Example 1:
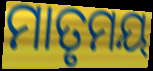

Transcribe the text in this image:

ମାତୃମୟ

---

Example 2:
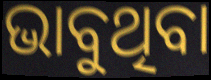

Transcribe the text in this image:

ଭାବୁଥିବା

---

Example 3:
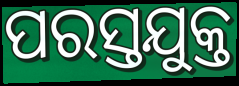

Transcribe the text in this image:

ପରସ୍ତଯୁକ୍ତ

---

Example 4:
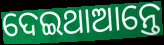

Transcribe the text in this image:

ଦେଇଥାଆନ୍ତେ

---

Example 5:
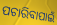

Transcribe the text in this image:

ପଚାରିବାପାଇଁ